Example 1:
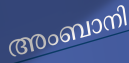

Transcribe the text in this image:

അംബാനി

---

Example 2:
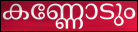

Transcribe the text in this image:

കണ്ണോടും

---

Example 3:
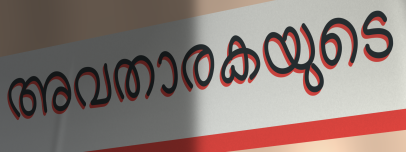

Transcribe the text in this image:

അവതാരകയുടെ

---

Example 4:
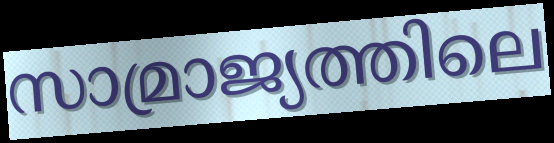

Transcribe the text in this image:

സാമ്രാജ്യത്തിലെ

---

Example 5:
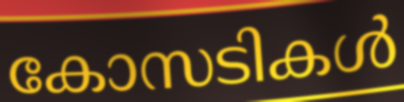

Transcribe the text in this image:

കോസടികൾ